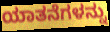
ಯಾತನೆಗಳನ್ನು